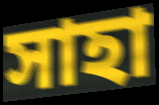
সাহা